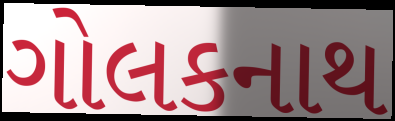
ગોલકનાથ